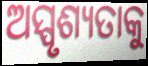
ଅସ୍ପୃଶ୍ୟତାକୁ